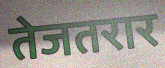
तेजतरार